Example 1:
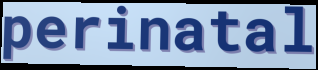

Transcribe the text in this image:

perinatal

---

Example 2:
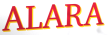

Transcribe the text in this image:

ALARA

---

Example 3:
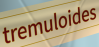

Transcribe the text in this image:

tremuloides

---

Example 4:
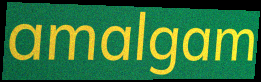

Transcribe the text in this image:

amalgam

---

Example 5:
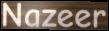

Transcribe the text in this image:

Nazeer